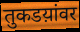
तुकडय़ांवर